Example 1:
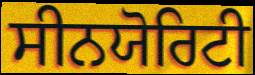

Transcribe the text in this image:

ਸੀਨਯੋਰਿਟੀ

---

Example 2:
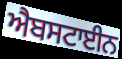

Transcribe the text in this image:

ਐਬਸਟਾਈਨ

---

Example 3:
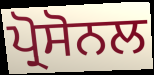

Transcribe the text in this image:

ਪ੍ਰੋਸੋਨਲ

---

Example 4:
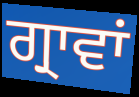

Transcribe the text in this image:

ਗ੍ਰਾਵਾਂ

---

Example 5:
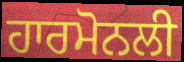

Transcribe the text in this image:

ਹਾਰਮੋਨਲੀ